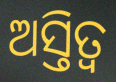
ଅସ୍ତିତ୍ଵ